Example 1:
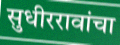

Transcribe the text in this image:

सुधीररावांचा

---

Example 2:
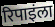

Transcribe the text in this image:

रिपाइंला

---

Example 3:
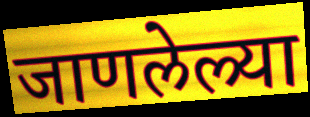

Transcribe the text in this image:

जाणलेल्या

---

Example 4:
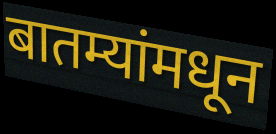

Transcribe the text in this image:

बातम्यांमधून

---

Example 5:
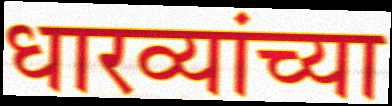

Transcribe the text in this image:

धारव्यांच्या